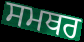
ਸਮਥਰ